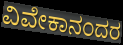
ವಿವೇಕಾನಂದರ